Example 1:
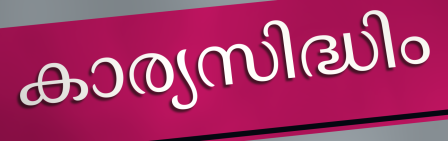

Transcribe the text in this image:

കാര്യസിദ്ധിം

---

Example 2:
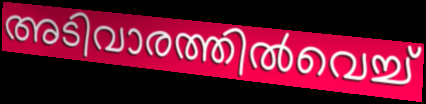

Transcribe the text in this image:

അടിവാരത്തിൽവെച്ച്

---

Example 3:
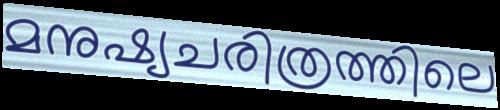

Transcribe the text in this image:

മനുഷ്യചരിത്രത്തിലെ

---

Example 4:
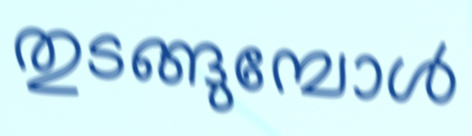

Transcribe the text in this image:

തുടങ്ങുമ്പോൾ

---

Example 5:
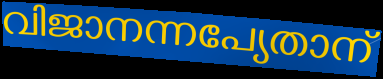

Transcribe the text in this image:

വിജാനന്നപ്യേതാന്